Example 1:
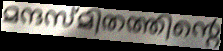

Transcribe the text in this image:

മന്ദസ്മിതത്തിന്റെ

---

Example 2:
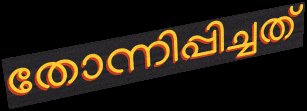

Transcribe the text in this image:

തോന്നിപ്പിച്ചത്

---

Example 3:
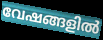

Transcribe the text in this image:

വേഷങ്ങളിൽ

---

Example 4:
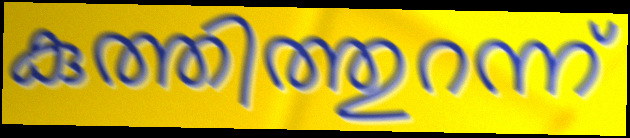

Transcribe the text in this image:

കുത്തിത്തുറന്ന്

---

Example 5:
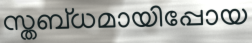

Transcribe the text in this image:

സ്തബ്ധമായിപ്പോയ